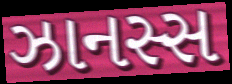
ઝાનસ્સ